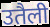
उतैली